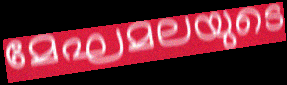
മേഘമലയുടെ